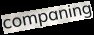
companing